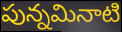
పున్నమినాటి